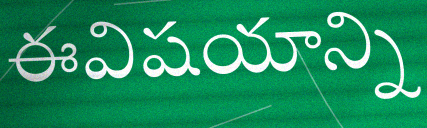
ఈవిషయాన్ని